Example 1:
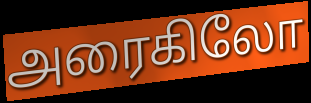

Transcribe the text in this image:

அரைகிலோ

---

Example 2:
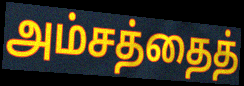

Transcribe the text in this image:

அம்சத்தைத்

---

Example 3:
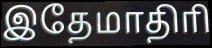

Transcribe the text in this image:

இதேமாதிரி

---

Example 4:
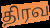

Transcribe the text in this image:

திரவ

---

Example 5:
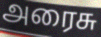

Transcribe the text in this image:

அரைசு